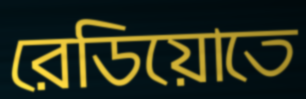
রেডিয়োতে